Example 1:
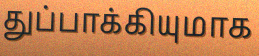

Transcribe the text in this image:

துப்பாக்கியுமாக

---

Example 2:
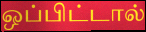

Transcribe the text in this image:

ஒப்பிட்டால்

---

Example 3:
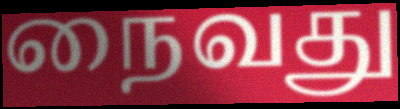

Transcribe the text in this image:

நைவது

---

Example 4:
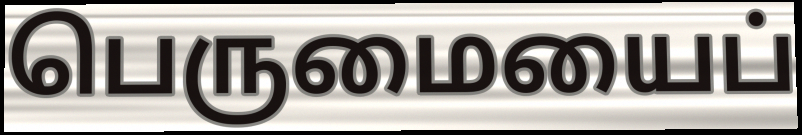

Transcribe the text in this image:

பெருமையைப்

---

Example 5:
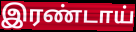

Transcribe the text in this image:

இரண்டாய்